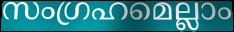
സംഗ്രഹമെല്ലാം